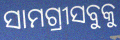
ସାମଗ୍ରୀସବୁକୁ